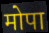
मोपा